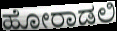
ಹೋರಾಡಲಿ